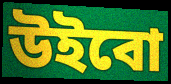
উইবো